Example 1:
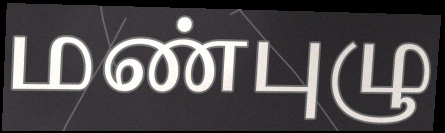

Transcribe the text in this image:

மண்புழு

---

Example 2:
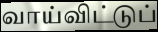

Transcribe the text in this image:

வாய்விட்டுப்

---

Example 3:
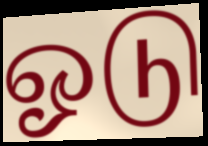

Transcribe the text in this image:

ஓடு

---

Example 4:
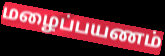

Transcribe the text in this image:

மழைப்பயணம்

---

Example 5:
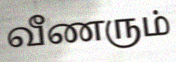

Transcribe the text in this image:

வீணரும்